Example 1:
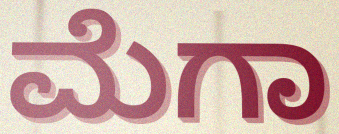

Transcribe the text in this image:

ಮೆಗಾ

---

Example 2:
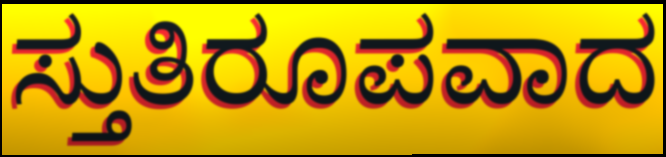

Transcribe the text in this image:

ಸ್ತುತಿರೂಪವಾದ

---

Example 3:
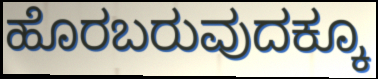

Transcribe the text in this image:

ಹೊರಬರುವುದಕ್ಕೂ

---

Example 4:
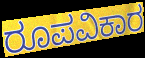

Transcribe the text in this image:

ರೂಪವಿಕಾರ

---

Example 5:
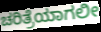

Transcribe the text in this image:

ಚರಿತ್ರೆಯಾಗಲೀ